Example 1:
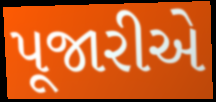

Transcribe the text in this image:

પૂજારીએ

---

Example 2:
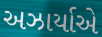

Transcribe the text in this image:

અઝાર્યાએ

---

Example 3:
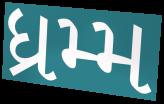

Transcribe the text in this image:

ધ્રમ્મ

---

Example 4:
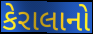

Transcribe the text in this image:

કેરાલાનો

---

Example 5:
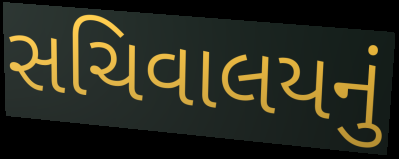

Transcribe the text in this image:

સચિવાલયનું